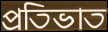
প্ৰতিভাত